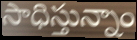
సాధిస్తున్నాం